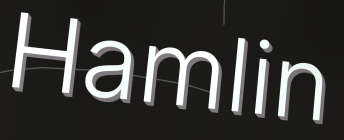
Hamlin